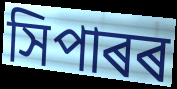
সিপাৰৰ